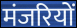
मंजरियों